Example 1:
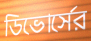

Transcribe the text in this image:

ডিভোর্সের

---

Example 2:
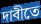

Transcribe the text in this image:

দাবীতে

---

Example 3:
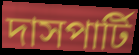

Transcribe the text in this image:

দাসপার্টি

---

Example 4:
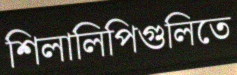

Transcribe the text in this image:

শিলালিপিগুলিতে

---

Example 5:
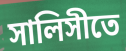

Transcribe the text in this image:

সালিসীতে